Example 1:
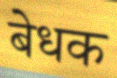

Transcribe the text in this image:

बेधक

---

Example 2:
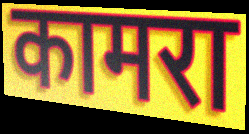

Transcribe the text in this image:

कामरा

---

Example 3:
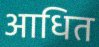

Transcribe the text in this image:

आधित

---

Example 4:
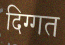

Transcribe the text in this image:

दिग्गत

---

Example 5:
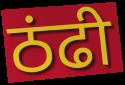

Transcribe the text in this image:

ठंढी